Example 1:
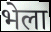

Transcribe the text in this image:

भेला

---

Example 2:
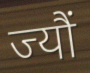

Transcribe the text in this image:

ज्यौं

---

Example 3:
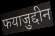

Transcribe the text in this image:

फयाजुद्दीन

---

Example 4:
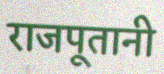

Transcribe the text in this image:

राजपूतानी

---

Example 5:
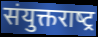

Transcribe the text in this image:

संयुक्तराष्ट्र